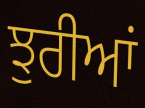
ਝੁਰੀਆਂ